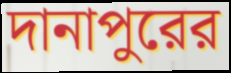
দানাপুরের